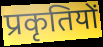
प्रकृतियों